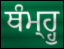
ਥੰਮ੍ਹ੍ਹੁ